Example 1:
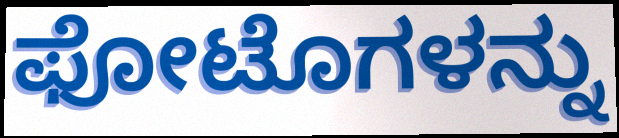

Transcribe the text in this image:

ಫೋಟೊಗಳನ್ನು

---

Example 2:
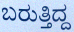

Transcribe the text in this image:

ಬರುತ್ತಿದ್ದ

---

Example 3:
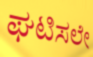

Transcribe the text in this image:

ಘಟಿಸಲೇ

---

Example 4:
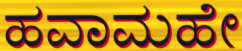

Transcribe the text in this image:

ಹವಾಮಹೇ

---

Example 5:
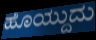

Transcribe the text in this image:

ಹೊಯ್ದುದು